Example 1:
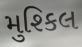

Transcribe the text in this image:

મુશ્કિલ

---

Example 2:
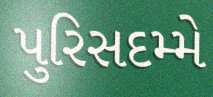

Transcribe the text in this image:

પુરિસદમ્મે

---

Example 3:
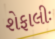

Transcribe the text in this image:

શેફાલીઃ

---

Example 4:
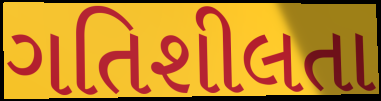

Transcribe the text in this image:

ગતિશીલતા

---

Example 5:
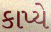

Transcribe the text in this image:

કાપ્યે